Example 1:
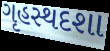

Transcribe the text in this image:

ગૃહસ્થદશા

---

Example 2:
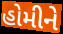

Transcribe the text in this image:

હોમીને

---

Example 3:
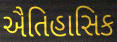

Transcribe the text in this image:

ઐતિહાસિક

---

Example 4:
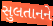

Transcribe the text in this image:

સુલતાનને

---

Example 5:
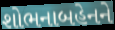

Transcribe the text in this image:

શોભનાબહેનને